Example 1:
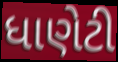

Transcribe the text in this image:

ધાણેટી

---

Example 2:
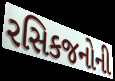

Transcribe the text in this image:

રસિકજનોની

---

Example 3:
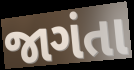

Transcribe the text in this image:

જાગંતા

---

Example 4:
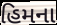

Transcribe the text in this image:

હિમના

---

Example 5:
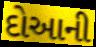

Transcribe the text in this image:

દોઆની